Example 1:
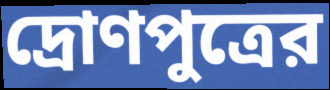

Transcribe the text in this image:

দ্রোণপুত্রের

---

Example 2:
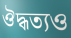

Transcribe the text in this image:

ঔদ্ধত্যও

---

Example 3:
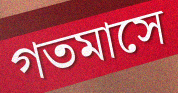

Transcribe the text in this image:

গতমাসে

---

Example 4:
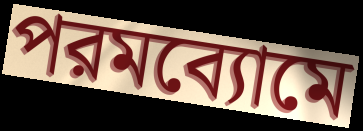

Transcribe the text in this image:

পরমব্যোমে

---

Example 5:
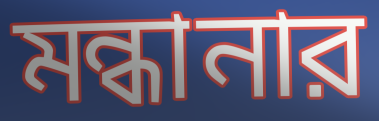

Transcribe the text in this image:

মন্ধানার